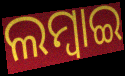
ଲମ୍ବାଇ